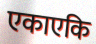
एकाएकि